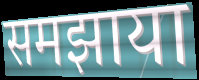
समझाया